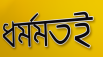
ধর্মমতই